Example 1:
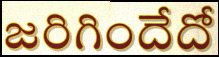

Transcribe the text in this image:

జరిగిందేదో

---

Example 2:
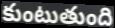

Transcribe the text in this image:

కుంటుతుంది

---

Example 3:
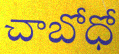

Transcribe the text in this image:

చాబోధో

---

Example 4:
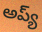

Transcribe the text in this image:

అప్య్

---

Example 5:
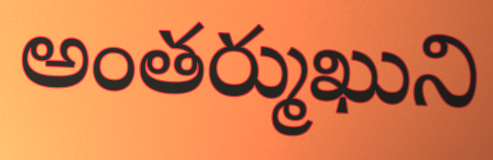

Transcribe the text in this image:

అంతర్ముఖుని